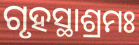
ଗୃହସ୍ଥାଶ୍ରମଃ